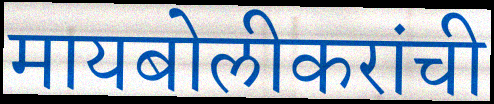
मायबोलीकरांची